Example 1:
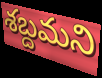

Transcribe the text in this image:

శబ్దమని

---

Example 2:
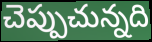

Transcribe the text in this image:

చెప్పుచున్నది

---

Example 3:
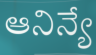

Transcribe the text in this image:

ఆనిన్యే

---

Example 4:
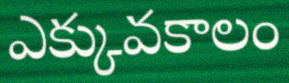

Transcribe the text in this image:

ఎక్కువకాలం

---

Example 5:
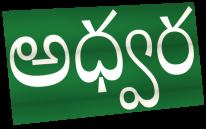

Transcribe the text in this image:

అధ్వర